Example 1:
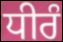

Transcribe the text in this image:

ਧੀਰੰ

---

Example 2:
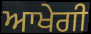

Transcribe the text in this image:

ਆਖੇਗੀ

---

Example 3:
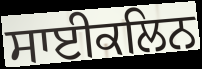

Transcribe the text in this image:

ਸਾਈਕਲਿਨ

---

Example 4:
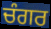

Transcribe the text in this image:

ਚੰਗਰ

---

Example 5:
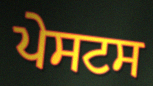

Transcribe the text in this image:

ਪੇਸਟਸ